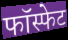
फॉस्फेट